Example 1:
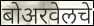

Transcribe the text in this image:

बोअरवेलचे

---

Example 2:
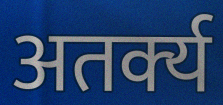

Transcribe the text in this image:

अतर्क्‍य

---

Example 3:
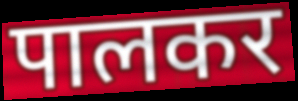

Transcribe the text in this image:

पालकर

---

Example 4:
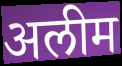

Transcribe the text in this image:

अलीम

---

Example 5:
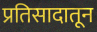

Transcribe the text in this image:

प्रतिसादातून